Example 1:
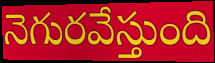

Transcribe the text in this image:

నెగురవేస్తుంది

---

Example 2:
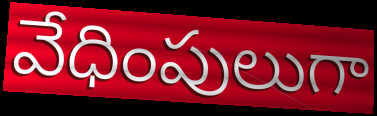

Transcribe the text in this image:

వేధింపులుగా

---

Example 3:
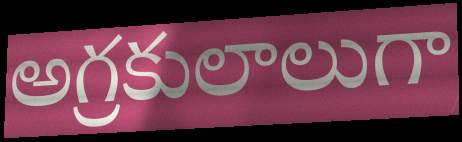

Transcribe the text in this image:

అగ్రకులాలుగా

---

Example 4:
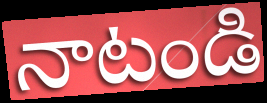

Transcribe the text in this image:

నాటండి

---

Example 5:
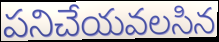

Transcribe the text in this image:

పనిచేయవలసిన